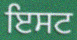
ਇਸਟ